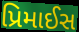
પ્રિમાઈસ